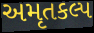
અમૃતકલ્પ